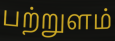
பற்றுளம்